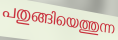
പതുങ്ങിയെത്തുന്ന